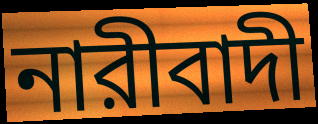
নারীবাদী